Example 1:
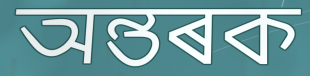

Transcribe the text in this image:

অন্তৰক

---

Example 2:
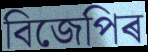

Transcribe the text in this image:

বিজেপিৰ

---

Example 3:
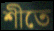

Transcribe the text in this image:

শীতে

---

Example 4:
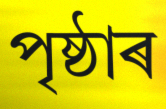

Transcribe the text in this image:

পৃষ্ঠাৰ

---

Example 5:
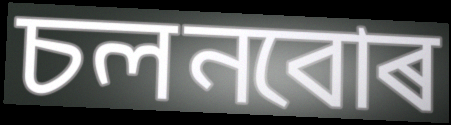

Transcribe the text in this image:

চলনবোৰ